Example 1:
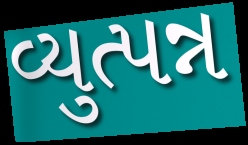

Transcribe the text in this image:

વ્યુત્પન્ન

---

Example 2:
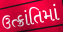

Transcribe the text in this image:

ઉત્ક્રાંતિમાં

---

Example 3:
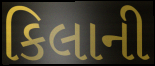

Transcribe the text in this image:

કિલાની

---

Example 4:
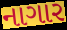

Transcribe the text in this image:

નાગાર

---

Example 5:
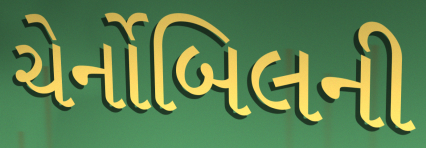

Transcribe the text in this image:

ચેર્નોબિલની